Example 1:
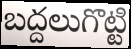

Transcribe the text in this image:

బద్దలుగొట్టి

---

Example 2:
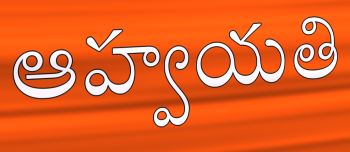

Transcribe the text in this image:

ఆహ్వయతి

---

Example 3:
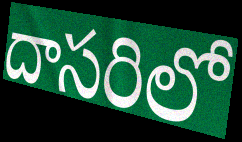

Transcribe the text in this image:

దాసరిలో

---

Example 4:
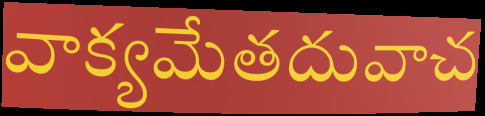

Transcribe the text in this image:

వాక్యమేతదువాచ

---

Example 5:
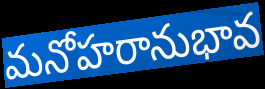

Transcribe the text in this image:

మనోహరానుభావ